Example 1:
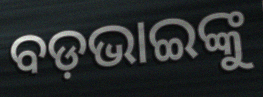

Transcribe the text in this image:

ବଡ଼ଭାଇଙ୍କୁ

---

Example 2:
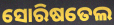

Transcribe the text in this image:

ସୋରିଷତେଲ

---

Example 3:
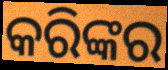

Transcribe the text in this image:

କରିଙ୍କର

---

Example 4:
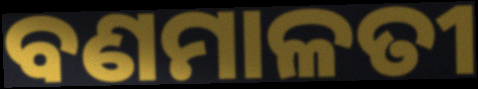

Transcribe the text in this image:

ବଣମାଳତୀ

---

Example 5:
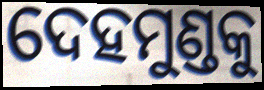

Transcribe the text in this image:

ଦେହମୁଣ୍ଡକୁ